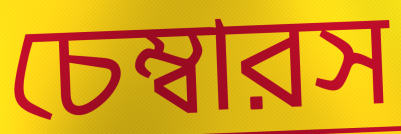
চেম্বারস